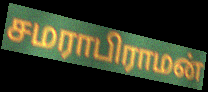
சமராபிராமன்